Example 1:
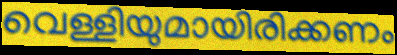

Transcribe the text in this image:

വെള്ളിയുമായിരിക്കണം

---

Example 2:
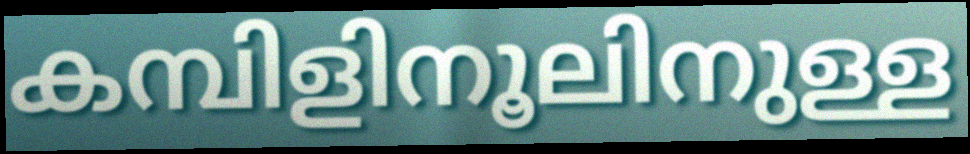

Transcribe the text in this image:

കമ്പിളിനൂലിനുള്ള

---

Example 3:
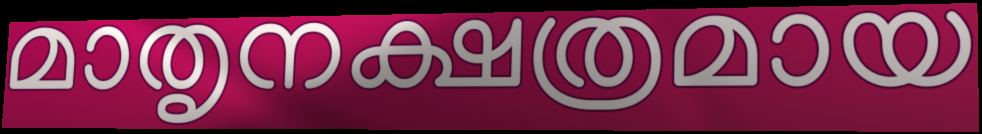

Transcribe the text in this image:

മാതൃനക്ഷത്രമായ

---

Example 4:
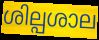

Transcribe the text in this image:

ശില്പശാല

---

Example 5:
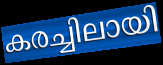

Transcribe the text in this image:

കരച്ചിലായി